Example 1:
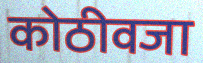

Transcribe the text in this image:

कोठीवजा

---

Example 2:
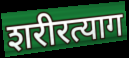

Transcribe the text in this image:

शरीरत्याग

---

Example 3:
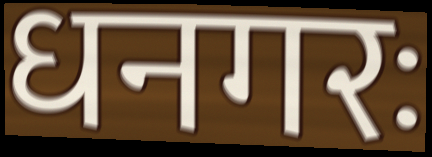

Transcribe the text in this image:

धनगरः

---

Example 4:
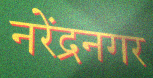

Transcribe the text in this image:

नरेंद्रनगर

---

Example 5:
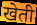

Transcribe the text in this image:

खेती